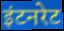
इंटनरेट